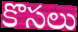
కొసలు